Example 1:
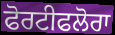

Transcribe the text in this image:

ਫੋਰਟੀਫਲੋਰਾ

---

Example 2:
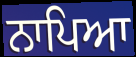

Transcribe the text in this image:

ਨਾਪਿਆ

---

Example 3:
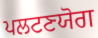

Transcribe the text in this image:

ਪਲਟਣਯੋਗ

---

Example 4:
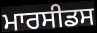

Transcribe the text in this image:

ਮਾਰਸੀਡਸ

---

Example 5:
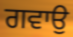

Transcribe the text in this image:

ਗਵਾਉ